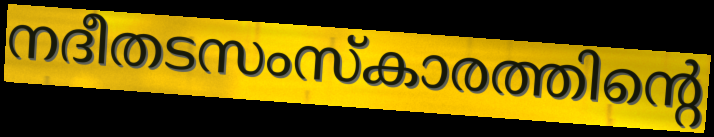
നദീതടസംസ്കാരത്തിന്റെ